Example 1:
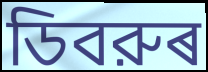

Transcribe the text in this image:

ডিবৰুৰ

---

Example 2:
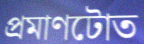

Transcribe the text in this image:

প্ৰমাণটোত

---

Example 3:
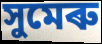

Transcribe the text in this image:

সুমেৰু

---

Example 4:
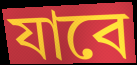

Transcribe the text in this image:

যাবে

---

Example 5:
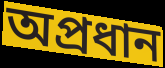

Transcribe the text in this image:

অপ্ৰধান